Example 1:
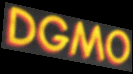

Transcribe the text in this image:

DGMO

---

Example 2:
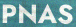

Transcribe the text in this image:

PNAS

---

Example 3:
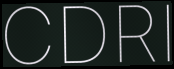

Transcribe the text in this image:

CDRI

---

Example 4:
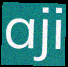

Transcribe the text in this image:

aji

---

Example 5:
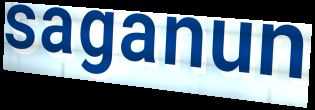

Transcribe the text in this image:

saganun